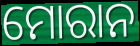
ମୋରାନ